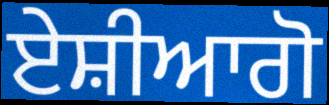
ਏਸ਼ੀਆਗੋ